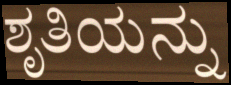
ಶೃತಿಯನ್ನು